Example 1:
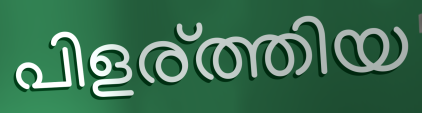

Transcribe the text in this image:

പിളര്ത്തിയ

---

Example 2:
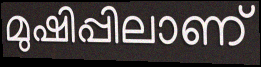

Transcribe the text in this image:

മുഷിപ്പിലാണ്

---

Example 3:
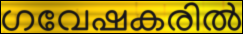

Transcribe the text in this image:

ഗവേഷകരിൽ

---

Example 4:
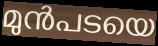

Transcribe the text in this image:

മുൻപടയെ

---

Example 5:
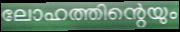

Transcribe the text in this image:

ലോഹത്തിന്റെയും